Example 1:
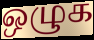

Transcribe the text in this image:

ஒழுக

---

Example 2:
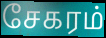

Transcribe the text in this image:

சேகரம்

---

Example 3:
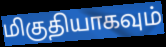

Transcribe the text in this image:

மிகுதியாகவும்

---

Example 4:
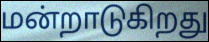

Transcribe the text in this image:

மன்றாடுகிறது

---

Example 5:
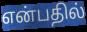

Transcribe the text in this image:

என்பதில்